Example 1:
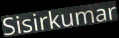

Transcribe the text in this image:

Sisirkumar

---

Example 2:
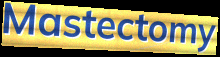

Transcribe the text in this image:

Mastectomy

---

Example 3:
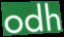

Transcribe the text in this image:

odh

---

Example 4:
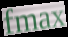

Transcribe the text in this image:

fmax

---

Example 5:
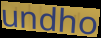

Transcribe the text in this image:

undho